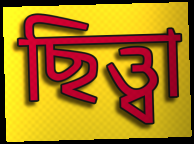
ছিত্ত্বা